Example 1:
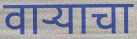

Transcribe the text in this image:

वाऱ्याचा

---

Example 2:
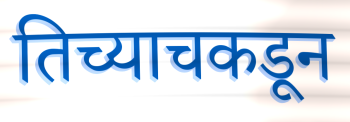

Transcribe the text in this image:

तिच्याचकडून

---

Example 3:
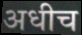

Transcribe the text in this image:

अधीच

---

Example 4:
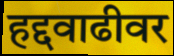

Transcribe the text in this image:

हद्दवाढीवर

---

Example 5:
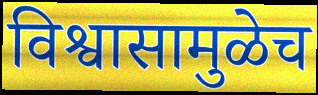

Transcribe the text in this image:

विश्वासामुळेच